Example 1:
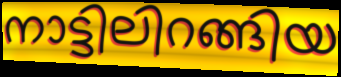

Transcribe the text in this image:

നാട്ടിലിറങ്ങിയ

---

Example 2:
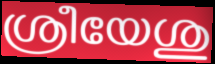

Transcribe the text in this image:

ശ്രീയേശു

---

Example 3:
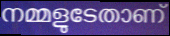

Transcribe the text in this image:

നമ്മളുടേതാണ്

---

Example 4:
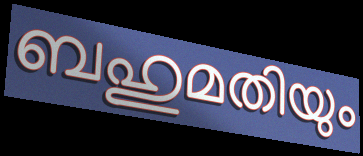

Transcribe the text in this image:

ബഹുമതിയും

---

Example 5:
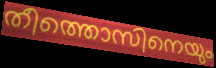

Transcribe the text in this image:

തീത്തൊസിനെയും